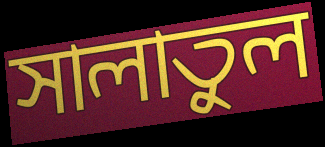
সালাতুল